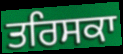
ਤਰਿਸਕਾ